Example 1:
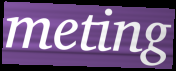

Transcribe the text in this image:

meting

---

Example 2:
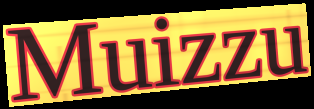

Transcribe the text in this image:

Muizzu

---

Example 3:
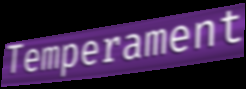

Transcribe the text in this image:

Temperament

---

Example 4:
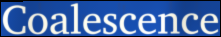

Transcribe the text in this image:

Coalescence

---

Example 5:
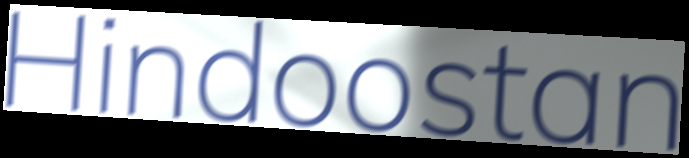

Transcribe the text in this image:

Hindoostan